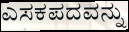
ಎಸಕಪದವನ್ನು